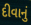
દીવાનું